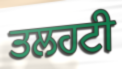
ਤਲਹਟੀ